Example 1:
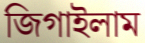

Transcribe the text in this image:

জিগাইলাম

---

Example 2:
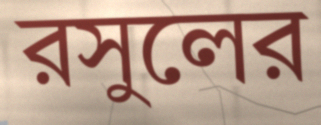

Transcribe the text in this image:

রসুলের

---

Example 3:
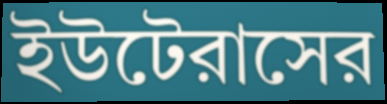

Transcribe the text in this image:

ইউটেরাসের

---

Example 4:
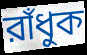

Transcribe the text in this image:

রাঁধুক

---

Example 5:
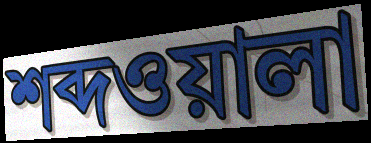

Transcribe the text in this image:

শব্দওয়ালা